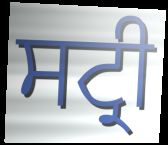
ਸਟ੍ਰੀ